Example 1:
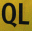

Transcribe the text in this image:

QL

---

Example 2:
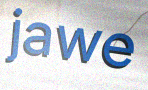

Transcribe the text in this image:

jawe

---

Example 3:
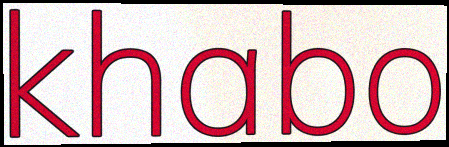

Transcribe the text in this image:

khabo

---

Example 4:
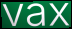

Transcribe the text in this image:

vax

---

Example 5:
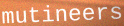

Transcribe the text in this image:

mutineers